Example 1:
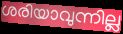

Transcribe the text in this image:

ശരിയാവുന്നില്ല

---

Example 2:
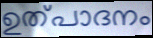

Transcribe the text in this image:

ഉത്പാദനം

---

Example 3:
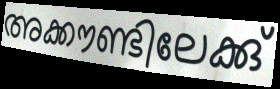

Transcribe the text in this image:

അക്കൗണ്ടിലേക്കു്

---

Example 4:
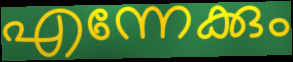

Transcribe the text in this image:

എന്നേക്കും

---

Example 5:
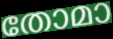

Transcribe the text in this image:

തോമാ